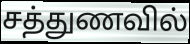
சத்துணவில்